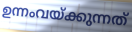
ഉന്നംവയ്ക്കുന്നത്